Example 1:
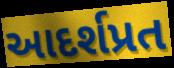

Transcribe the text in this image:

આદર્શપ્રત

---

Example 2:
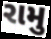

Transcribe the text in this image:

રામુ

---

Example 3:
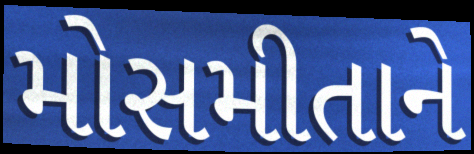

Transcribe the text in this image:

મોસમીતાને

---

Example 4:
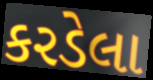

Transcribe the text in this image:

કરડેલા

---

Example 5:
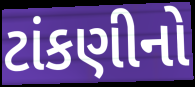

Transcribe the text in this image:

ટાંકણીનો